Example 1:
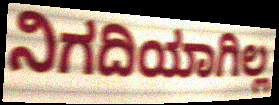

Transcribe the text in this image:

ನಿಗದಿಯಾಗಿಲ್ಲ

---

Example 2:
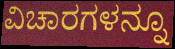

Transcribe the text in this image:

ವಿಚಾರಗಳನ್ನೂ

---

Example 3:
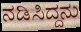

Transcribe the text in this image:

ನಡಿಸಿದ್ದನು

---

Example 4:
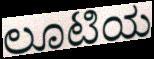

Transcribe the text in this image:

ಲೂಟಿಯ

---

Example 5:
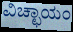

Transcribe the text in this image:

ವಿಚ್ಛಾಯಂ